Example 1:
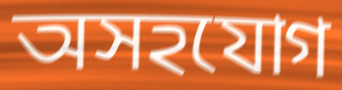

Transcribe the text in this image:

অসহযোগ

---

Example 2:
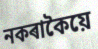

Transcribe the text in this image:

নকৰাকৈয়ে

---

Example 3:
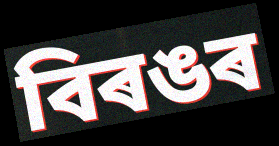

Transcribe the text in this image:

বিৰঙৰ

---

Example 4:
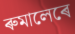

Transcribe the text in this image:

ৰুমালেৰে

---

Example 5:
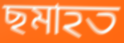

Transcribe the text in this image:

ছমাহত